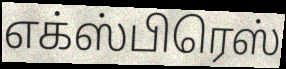
எக்ஸ்பிரெஸ்